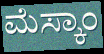
ಮೆಸ್ಕಾಂ